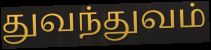
துவந்துவம்